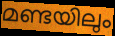
മണ്ടയിലും